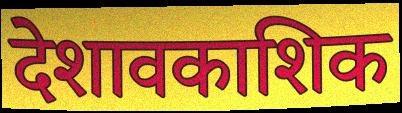
देशावकाशिक